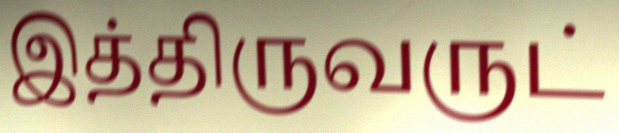
இத்திருவருட்